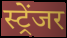
स्ट्रेंजर